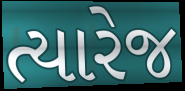
ત્યારેજ